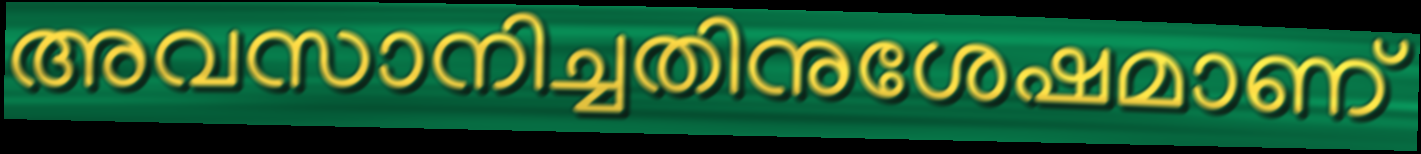
അവസാനിച്ചതിനുശേഷമാണ്